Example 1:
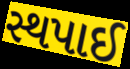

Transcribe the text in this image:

સ્થપાઈ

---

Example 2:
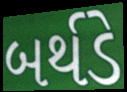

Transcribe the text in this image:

બર્થડે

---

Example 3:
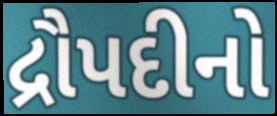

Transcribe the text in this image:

દ્રૌપદીનો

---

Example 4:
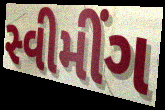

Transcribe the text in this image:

સ્વીમીંગ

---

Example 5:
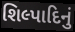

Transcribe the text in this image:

શિલ્પાદિનું